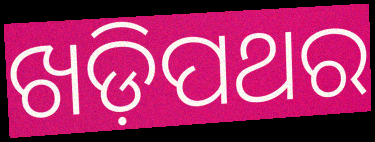
ଖଡ଼ିପଥର